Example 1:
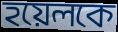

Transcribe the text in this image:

হয়েলকে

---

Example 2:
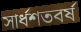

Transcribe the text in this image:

সার্ধশতবর্ষ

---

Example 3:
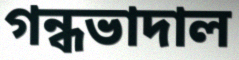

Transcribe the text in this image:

গন্ধভাদাল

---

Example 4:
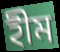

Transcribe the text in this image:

হীম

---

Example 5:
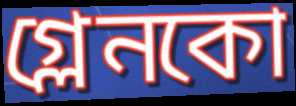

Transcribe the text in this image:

গ্লেনকো